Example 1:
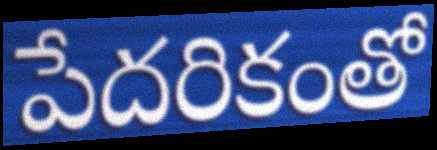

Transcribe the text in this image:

పేదరికంతో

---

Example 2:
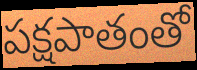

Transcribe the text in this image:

పక్షపాతంతో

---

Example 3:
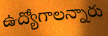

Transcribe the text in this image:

ఉద్యోగాలన్నారు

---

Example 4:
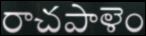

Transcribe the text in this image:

రాచపాళెం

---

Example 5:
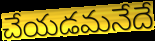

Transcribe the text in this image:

చేయడమనేదే